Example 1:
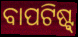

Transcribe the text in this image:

ବାପଟିଷ୍ଟ୍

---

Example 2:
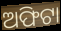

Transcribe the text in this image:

ଅଫିଟା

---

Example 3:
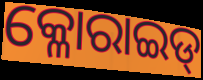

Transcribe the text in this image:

କ୍ଳୋରାଇଡ୍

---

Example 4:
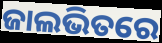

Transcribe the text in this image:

ଜାଲଭିତରେ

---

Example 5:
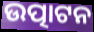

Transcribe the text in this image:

ଉତ୍ପାଟନ